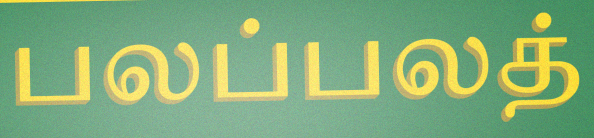
பலப்பலத்